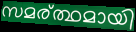
സമര്ത്ഥമായി